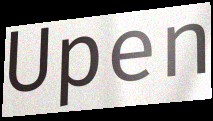
Upen